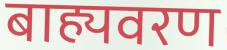
बाह्यवरण